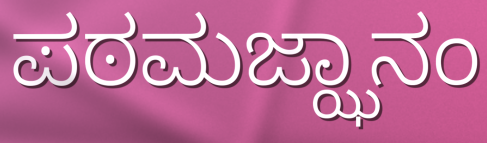
ಪಠಮಜ್ಝಾನಂ